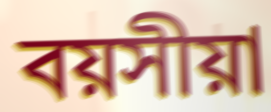
বয়সীয়া